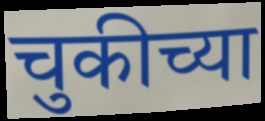
चुकीच्या